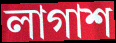
লাগাশ